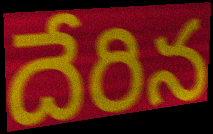
దేరిన